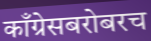
काँग्रेसबरोबरच